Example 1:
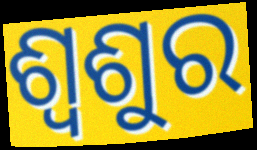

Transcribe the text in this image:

ଶ୍ଵଶୁର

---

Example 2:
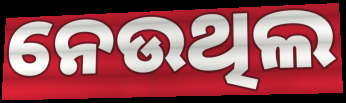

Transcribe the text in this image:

ନେଉଥିଲ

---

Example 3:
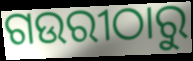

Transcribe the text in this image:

ଗଉରୀଠାରୁ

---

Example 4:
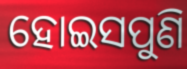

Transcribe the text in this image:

ହୋଇସପୁଣି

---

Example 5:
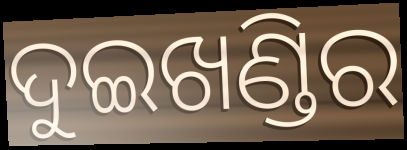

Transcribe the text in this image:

ଦୁଇଖଣ୍ଡିର